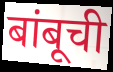
बांबूची